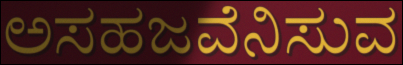
ಅಸಹಜವೆನಿಸುವ